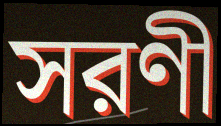
সরণী